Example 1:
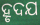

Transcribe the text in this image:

ହୃଦଯ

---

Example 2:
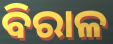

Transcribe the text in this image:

ବିରାଳ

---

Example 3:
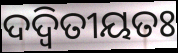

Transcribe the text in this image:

ଦଦ୍ୱିତୀୟତଃ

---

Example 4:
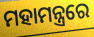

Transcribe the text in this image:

ମହାମନ୍ତ୍ରରେ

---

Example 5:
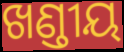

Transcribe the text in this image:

ଖଣ୍ଡୀୟ